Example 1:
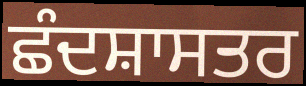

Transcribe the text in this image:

ਛੰਦਸ਼ਾਸਤਰ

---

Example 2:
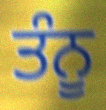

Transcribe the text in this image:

ਤੰਨੂ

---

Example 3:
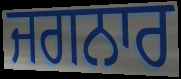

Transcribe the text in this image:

ਜਗਨਾਰ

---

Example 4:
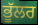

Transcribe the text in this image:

ਭੂੱਲਰ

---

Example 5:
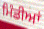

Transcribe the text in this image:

ਮਿੰਡੀਆਂ